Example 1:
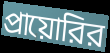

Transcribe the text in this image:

প্রায়োরির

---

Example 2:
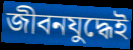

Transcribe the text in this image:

জীবনযুদ্ধেই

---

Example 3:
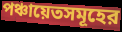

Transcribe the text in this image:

পঞ্চায়েতসমূহের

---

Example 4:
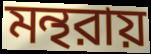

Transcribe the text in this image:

মন্থরায়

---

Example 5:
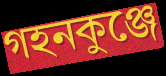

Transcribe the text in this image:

গহনকুঞ্জে